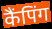
कैंपिंग